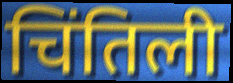
चिंतिली